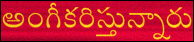
అంగీకరిస్తున్నారు